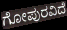
ಗೋಪುರವಿದೆ